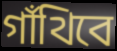
গাঁথিবে